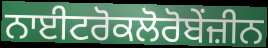
ਨਾਈਟਰੋਕਲੋਰੋਬੇਂਜ਼ੀਨ